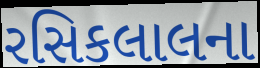
રસિકલાલના